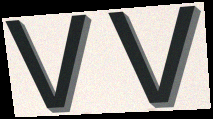
vv